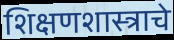
शिक्षणशास्त्राचे